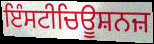
ਇੰਸਟੀਚਿਊਸ਼ਨਜ਼